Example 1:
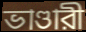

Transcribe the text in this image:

ভাণ্ডারী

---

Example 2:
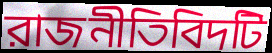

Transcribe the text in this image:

রাজনীতিবিদটি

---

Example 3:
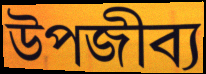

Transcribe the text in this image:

উপজীব্য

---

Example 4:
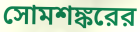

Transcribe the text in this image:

সোমশঙ্করের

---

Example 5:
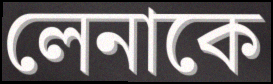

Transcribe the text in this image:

লেনাকে